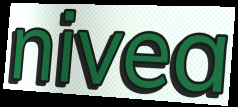
nivea